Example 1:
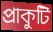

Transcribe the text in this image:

প্রাকুটি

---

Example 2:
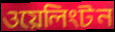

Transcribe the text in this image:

ওয়েলিংটন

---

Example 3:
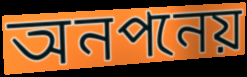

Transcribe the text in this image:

অনপনেয়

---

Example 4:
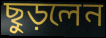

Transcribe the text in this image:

ছুড়লেন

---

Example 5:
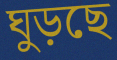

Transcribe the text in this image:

ঘুড়ছে